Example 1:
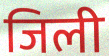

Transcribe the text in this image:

जिली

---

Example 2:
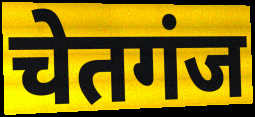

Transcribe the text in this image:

चेतगंज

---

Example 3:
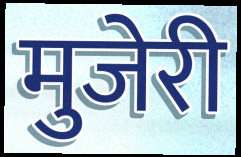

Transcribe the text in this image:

मुजेरी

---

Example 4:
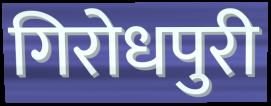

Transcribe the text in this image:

गिरोधपुरी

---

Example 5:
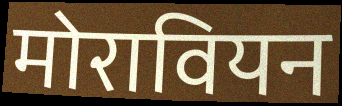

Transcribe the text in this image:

मोरावियन